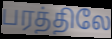
பரத்திலே